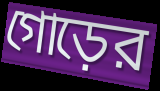
গোড়ের